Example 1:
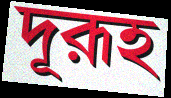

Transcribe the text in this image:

দূরূহ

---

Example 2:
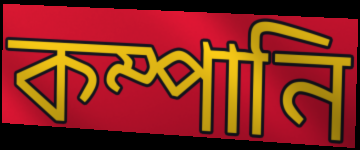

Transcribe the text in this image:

কম্পানি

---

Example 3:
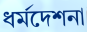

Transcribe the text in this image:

ধর্মদেশনা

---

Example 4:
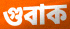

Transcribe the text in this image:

গুবাক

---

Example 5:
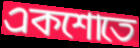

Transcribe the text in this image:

একশোতে